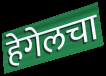
हेगेलचा